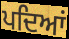
ਪਦਿਆਂ